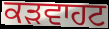
ਕੜਵਾਹਟ